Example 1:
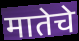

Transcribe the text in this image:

मातेचे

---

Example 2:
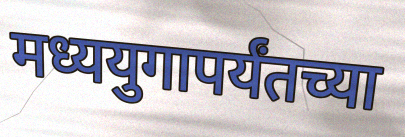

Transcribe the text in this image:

मध्ययुगापर्यंतच्या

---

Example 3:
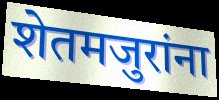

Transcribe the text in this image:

शेतमजुरांना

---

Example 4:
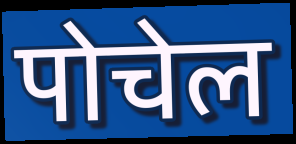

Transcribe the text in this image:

पोचेल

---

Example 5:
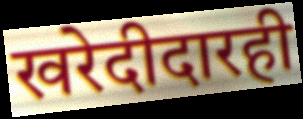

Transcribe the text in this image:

खरेदीदारही